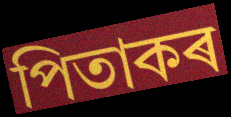
পিতাকৰ